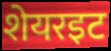
शेयरइट